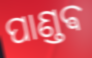
ପାଣ୍ଡଵ